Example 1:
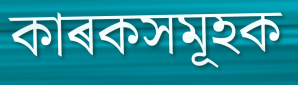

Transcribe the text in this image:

কাৰকসমূহক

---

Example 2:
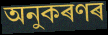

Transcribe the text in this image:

অনুকৰণৰ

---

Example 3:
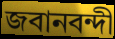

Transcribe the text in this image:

জবানবন্দী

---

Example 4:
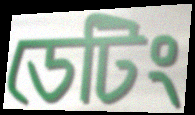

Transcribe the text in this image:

ডেটিং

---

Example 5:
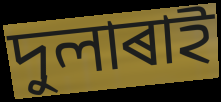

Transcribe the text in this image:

দুলাৰাই